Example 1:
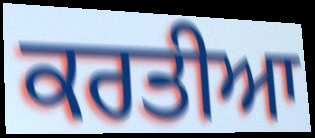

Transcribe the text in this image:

ਕਰਤੀਆ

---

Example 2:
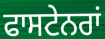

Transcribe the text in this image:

ਫਾਸਟੇਨਰਾਂ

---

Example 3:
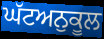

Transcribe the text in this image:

ਘੱਟਅਨੁਕੂਲ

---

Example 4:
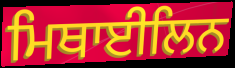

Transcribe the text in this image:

ਮਿਥਾਈਲਿਨ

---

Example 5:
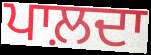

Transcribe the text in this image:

ਪਾਲ਼ਦਾ